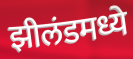
झीलंडमध्ये